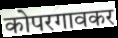
कोपरगावकर